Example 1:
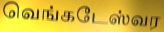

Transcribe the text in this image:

வெங்கடேஸ்வர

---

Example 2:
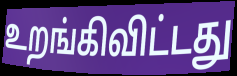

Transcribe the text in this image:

உறங்கிவிட்டது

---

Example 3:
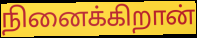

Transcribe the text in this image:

நினைக்கிறான்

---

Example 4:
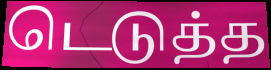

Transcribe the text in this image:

டெடுத்த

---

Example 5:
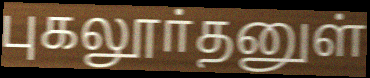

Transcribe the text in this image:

புகலூர்தனுள்